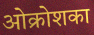
ओक्रोशका